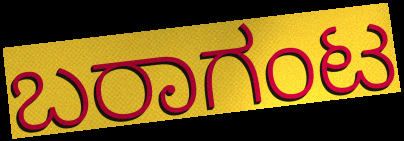
ಬರಾಗಂಟ